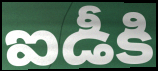
ఐడీకి